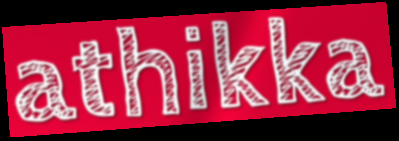
athikka